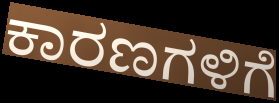
ಕಾರಣಗಳಿಗೆ